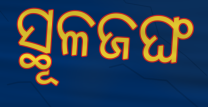
ସ୍ଥୂଳଜଙ୍ଘ